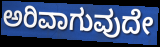
ಅರಿವಾಗುವುದೇ